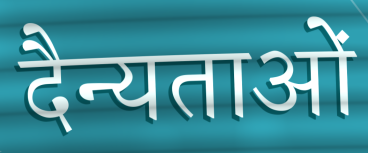
दैन्यताओं